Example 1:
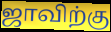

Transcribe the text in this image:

ஜாவிற்கு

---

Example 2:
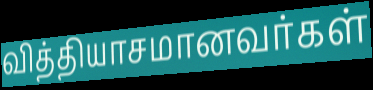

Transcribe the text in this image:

வித்தியாசமானவர்கள்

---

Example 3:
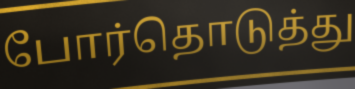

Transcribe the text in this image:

போர்தொடுத்து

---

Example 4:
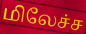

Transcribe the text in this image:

மிலேச்ச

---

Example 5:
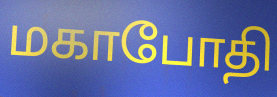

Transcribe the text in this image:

மகாபோதி